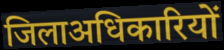
जिलाअधिकारियों